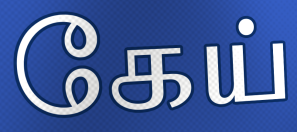
கேய்